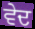
ਵੇਦ